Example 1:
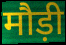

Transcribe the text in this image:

मौड़ी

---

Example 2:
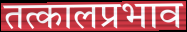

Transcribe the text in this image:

तत्कालप्रभाव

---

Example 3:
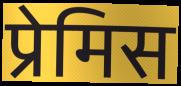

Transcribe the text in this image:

प्रेमिस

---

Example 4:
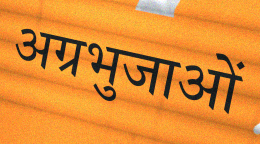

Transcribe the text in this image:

अग्रभुजाओं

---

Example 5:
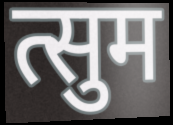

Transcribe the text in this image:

त्सुम